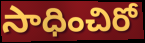
సాధించిరో